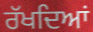
ਰੱਖਦਿਆਂ